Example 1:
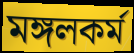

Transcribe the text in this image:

মঙ্গলকর্ম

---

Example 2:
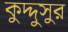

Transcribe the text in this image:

কুদ্দুসুর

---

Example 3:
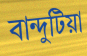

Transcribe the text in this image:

বান্দুটিয়া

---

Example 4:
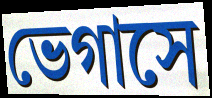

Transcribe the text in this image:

ভেগাসে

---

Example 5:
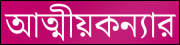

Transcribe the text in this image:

আত্মীয়কন্যার